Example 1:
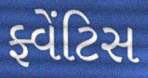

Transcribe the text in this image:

ફ્વેંટિસ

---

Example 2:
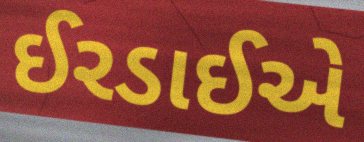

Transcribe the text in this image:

ઈરડાઈએ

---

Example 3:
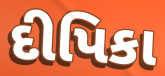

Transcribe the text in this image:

દીપિકા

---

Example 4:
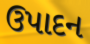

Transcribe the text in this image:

ઉપાદન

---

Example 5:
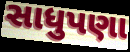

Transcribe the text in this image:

સાધુપણા